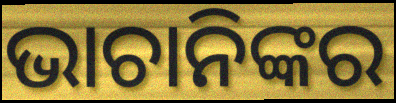
ଭାଚାନିଙ୍କର